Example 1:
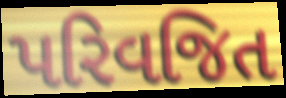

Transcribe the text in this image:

પરિવજિત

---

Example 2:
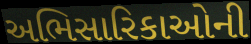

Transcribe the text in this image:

અભિસારિકાઓની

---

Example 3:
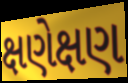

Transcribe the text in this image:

ક્ષણેક્ષણ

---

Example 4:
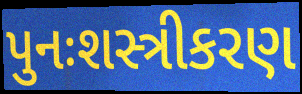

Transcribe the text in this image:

પુનઃશસ્ત્રીકરણ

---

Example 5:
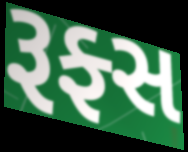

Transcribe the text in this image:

રૂફ્સ